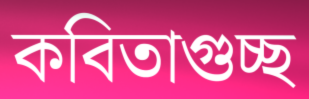
কবিতাগুচ্ছ